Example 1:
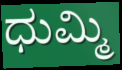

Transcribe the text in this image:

ಧುಮ್ಮಿ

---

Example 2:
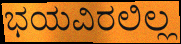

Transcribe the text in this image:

ಭಯವಿರಲಿಲ್ಲ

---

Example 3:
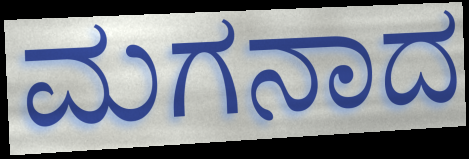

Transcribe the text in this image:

ಮಗನಾದ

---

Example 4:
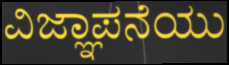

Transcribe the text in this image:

ವಿಜ್ಞಾಪನೆಯು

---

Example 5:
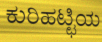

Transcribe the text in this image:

ಕುರಿಹಟ್ಟಿಯ